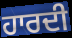
ਹਾਰਦੀ